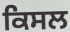
ਕਿਸਲ